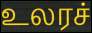
உலரச்